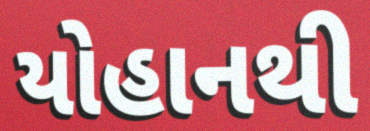
યોહાનથી